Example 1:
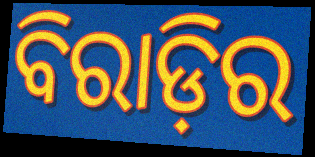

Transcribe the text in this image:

ବିରାଡ଼ିର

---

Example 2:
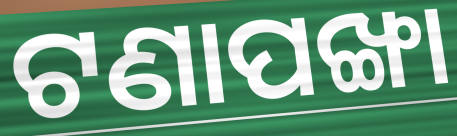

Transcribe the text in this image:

ଟଣାପଙ୍ଖା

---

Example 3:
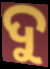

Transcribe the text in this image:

ଦୁ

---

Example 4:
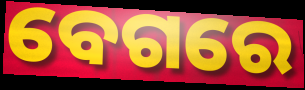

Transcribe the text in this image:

ବେଗରେ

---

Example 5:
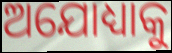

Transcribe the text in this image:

ଅଯୋଧ୍ୟାକୁ